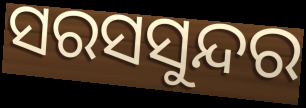
ସରସସୁନ୍ଦର